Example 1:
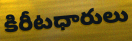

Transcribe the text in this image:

కిరీటధారులు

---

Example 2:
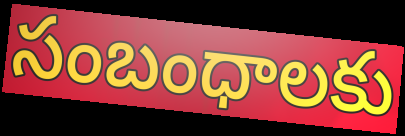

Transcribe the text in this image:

సంబంధాలకు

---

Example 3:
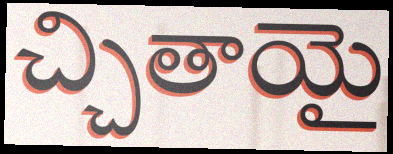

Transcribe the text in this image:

చ్చితాయై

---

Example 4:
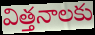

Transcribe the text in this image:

విత్తనాలకు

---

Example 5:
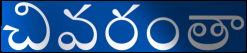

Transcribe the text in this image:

చివరంతా